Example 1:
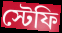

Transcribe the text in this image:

স্টেফি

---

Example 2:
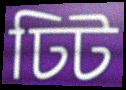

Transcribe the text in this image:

ঢিট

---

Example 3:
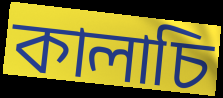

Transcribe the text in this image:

কালাচি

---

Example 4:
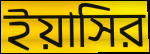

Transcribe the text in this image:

ইয়াসির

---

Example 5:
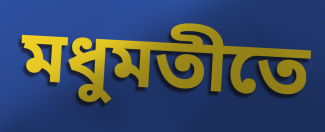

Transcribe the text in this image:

মধুমতীতে